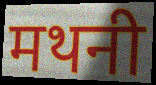
मथनी